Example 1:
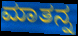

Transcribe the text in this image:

ಮಾತನ್ನ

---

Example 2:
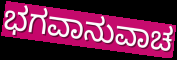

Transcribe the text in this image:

ಭಗವಾನುವಾಚ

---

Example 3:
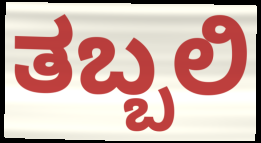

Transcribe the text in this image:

ತಬ್ಬಲಿ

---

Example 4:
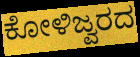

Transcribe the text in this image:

ಕೋಳಿಜ್ವರದ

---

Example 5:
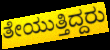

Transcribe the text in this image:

ತೇಯುತ್ತಿದ್ದರು